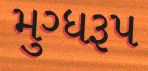
મુગ્ધરૂપ